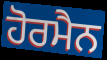
ਹੋਰਮੈਨ